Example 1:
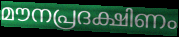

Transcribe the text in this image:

മൗനപ്രദക്ഷിണം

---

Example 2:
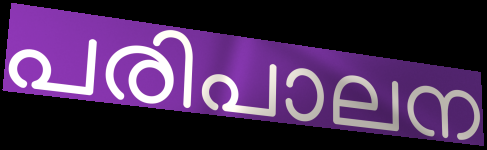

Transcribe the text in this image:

പരിപാലന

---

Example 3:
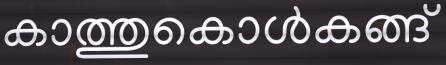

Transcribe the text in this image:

കാത്തുകൊൾകങ്ങ്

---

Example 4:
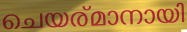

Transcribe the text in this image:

ചെയര്മാനായി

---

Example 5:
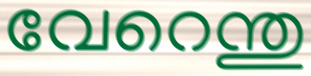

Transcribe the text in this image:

വേറെന്തു